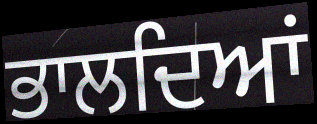
ਭਾਲਦਿਆਂ